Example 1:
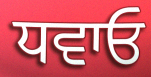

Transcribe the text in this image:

ਧਵਾਓ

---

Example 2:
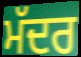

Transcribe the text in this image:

ਮੱਦਰ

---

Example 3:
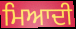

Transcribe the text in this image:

ਮਿਆਦੀ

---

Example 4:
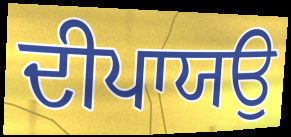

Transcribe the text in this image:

ਦੀਪਾਯਉ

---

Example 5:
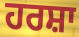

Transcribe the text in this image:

ਹਰਸ਼ਾ